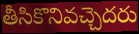
తీసికొనివచ్చెదరు